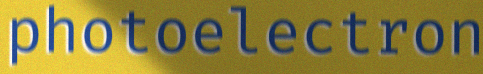
photoelectron